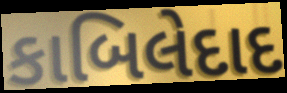
કાબિલેદાદ